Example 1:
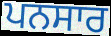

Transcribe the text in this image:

ਪਨਸਾਰ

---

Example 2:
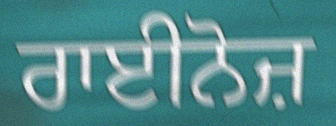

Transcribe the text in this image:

ਰਾਈਨੋਜ਼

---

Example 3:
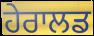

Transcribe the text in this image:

ਹੇਰਾਲਡ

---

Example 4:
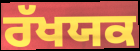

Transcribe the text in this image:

ਰੱਖਯਕ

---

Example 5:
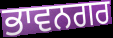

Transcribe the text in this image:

ਭਾਵਨਗਰ